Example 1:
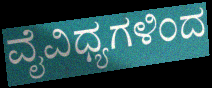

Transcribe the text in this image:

ವೈವಿಧ್ಯಗಳಿಂದ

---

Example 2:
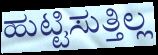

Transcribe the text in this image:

ಹುಟ್ಟಿಸುತ್ತಿಲ್ಲ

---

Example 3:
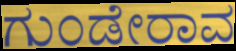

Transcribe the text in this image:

ಗುಂಡೇರಾವ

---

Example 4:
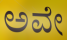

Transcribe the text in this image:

ಅವೇ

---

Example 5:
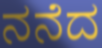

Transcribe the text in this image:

ನನೆದ